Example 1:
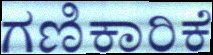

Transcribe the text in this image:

ಗಣಿಕಾರಿಕೆ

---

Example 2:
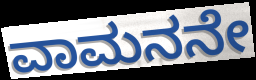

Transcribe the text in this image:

ವಾಮನನೇ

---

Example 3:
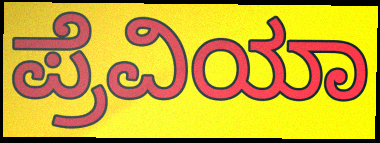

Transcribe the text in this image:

ಪ್ರೆವಿಯಾ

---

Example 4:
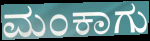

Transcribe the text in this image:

ಮಂಕಾಗು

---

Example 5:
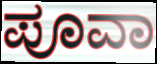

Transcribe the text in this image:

ಪೂವಾ